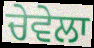
ਚੇਵੇਲਾ